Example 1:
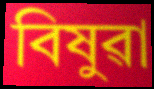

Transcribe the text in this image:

বিষুৱা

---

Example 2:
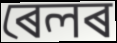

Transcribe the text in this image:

ৰেলৰ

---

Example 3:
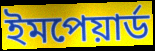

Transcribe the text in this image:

ইমপেয়াৰ্ড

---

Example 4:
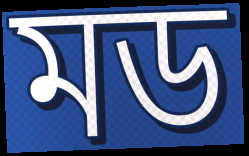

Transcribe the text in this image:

মড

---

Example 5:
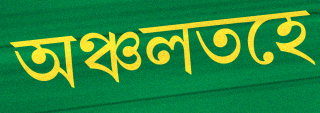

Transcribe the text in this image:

অঞ্চলতহে